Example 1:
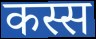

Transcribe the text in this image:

कस्स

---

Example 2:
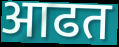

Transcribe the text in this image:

आढत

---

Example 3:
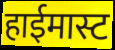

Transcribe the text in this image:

हाईमास्ट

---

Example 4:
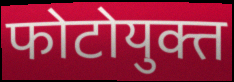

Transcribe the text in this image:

फोटोयुक्त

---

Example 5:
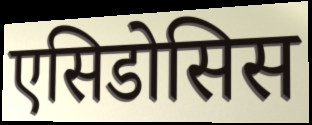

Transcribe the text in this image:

एसिडोसिस